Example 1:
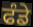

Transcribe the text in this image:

ਫੰਡੇ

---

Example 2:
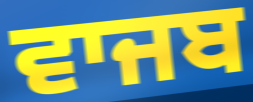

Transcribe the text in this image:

ਵਾਜਬ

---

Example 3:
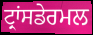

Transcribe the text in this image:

ਟ੍ਰਾਂਸਡੇਰਮਲ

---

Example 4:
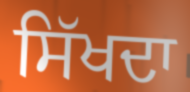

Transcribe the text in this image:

ਸਿੱਖਦਾ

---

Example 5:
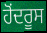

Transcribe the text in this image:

ਹੋਂਦਰੂਸ